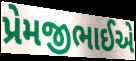
પ્રેમજીભાઈએ